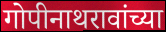
गोपीनाथरावांच्या